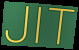
JIT